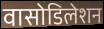
वासोडिलेशन